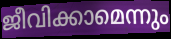
ജീവിക്കാമെന്നും